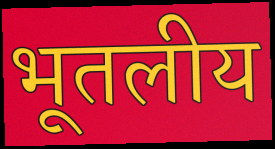
भूतलीय